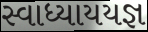
સ્વાધ્યાયયજ્ઞ